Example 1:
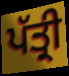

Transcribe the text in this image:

ਪੱਤ੍ਰੀ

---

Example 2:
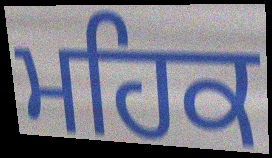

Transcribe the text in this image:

ਮਹਿਕ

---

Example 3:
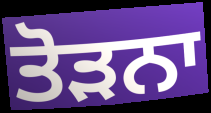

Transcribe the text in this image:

ਤੋੜਨਾ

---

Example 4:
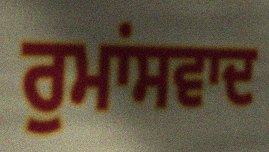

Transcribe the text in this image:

ਰੁਮਾਂਸਵਾਦ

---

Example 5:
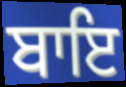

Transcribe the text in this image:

ਬਾਇ